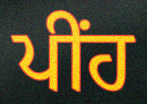
ਪੀਂਹ